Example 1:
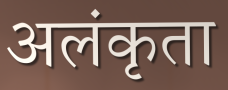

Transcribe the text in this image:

अलंकृता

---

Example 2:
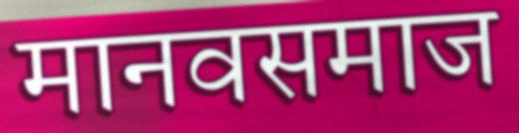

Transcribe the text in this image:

मानवसमाज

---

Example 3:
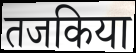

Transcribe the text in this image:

तजकिया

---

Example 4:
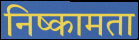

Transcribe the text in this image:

निष्कामता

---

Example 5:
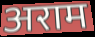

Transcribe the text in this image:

अराम